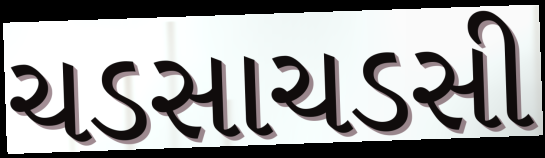
ચડસાચડસી